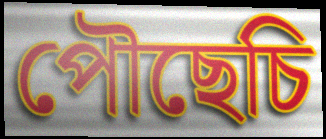
পৌছেচি